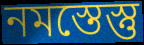
নমস্তেস্তু